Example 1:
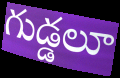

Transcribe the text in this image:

గుడ్డలూ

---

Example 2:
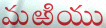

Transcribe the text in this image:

మఱియు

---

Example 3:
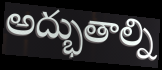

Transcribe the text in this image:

అద్భుతాల్ని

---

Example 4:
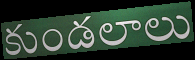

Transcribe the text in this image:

కుండలాలు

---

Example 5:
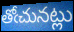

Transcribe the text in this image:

తోఁచునట్లు